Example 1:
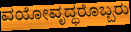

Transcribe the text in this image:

ವಯೋವೃದ್ಧರೊಬ್ಬರು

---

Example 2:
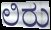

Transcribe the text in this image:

ಲಿರು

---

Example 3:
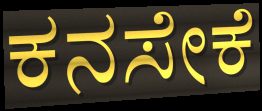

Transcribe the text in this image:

ಕನಸೇಕೆ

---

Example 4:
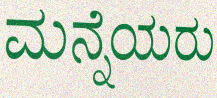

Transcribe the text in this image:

ಮನ್ನೆಯರು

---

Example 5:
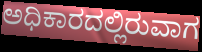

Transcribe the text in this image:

ಅಧಿಕಾರದಲ್ಲಿರುವಾಗ